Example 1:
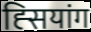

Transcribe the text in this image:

ह्सियांग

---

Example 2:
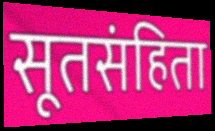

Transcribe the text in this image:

सूतसंहिता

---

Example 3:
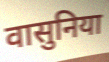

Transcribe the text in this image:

वासुनिया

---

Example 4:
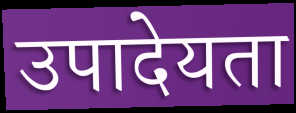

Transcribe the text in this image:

उपादेयता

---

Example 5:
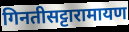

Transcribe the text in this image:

गिनतीसट्टारामायण